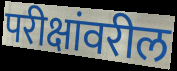
परीक्षांवरील